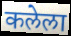
कलेला